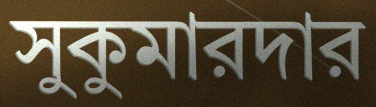
সুকুমারদার